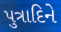
પુત્રાદિને